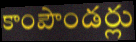
కాంపౌండర్లు